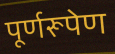
पूर्णरूपेण